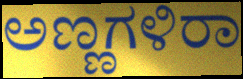
ಅಣ್ಣಗಳಿರಾ